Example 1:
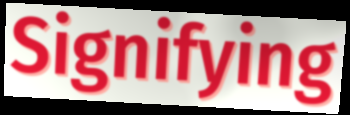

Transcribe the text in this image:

Signifying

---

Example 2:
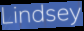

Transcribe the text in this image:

Lindsey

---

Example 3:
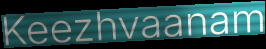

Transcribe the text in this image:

Keezhvaanam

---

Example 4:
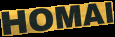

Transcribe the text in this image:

HOMAI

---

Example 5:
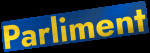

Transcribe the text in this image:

Parliment